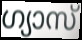
ഗ്യാസ്